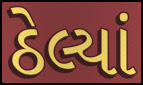
ઠેલ્યાં